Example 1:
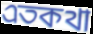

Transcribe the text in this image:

এতকথা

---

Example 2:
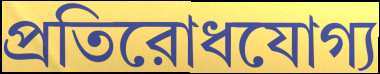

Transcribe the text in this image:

প্রতিরোধযোগ্য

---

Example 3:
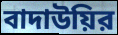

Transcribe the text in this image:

বাদাউয়ির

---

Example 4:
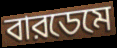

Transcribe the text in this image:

বারডেমে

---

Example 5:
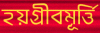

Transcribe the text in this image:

হয়গ্রীবমূর্ত্তি